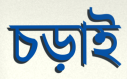
চড়াই